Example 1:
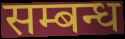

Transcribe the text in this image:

सम्बन्ध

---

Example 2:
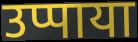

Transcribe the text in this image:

उप्पाया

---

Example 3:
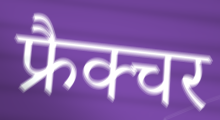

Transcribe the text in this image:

फ्रैक्चर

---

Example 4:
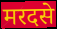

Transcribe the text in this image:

मरदसे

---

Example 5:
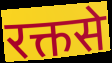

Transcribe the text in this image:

रक्तसे